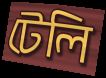
টেলি